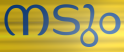
നടും